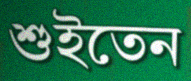
শুইতেন